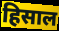
हिसाल